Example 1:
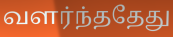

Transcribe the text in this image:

வளர்ந்ததேது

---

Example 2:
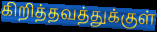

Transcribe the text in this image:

கிறித்தவத்துக்குள்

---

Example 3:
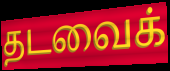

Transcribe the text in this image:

தடவைக்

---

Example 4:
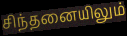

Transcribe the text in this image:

சிந்தனையிலும்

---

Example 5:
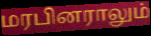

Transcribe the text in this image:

மரபினராலும்